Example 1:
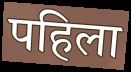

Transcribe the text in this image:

पहिला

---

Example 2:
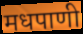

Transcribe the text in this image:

मधपाणी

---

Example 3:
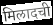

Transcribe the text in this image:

मिलादची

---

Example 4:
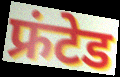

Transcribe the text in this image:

फ्रंटेड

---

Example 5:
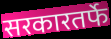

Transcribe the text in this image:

सरकारतर्फे